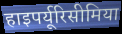
हाइपर्यूरिसीमिया